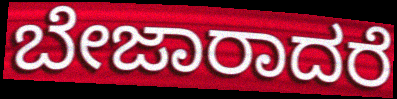
ಬೇಜಾರಾದರೆ